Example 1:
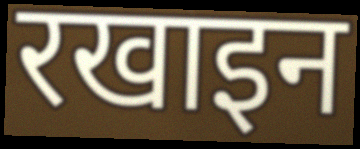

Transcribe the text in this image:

रखाइन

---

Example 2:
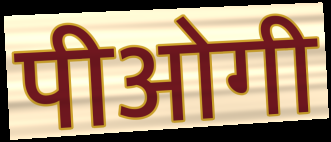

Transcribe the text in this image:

पीओगी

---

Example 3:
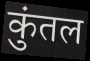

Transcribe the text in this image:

कुंतल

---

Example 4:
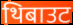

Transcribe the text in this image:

थिबाउट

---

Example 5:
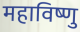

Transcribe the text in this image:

महाविष्णु